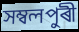
সম্বলপুৰী